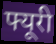
फ्यूरी